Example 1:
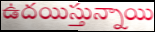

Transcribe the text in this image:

ఉదయిస్తున్నాయి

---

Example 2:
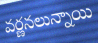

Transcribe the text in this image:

వర్ణనలున్నాయి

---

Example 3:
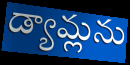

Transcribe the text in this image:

డ్యామ్లను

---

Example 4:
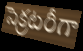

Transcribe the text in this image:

సెక్రటరీగా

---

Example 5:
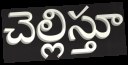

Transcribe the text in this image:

చెల్లిస్తూ